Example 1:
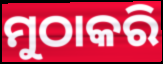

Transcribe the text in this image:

ମୁଠାକରି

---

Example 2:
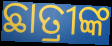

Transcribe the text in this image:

ଛାତ୍ରୀଙ୍କ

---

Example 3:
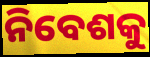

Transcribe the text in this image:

ନିବେଶକୁ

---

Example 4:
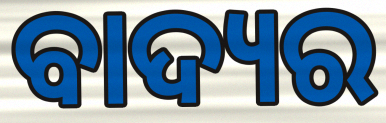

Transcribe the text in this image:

ବାଦ୍ୟର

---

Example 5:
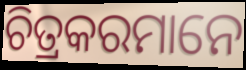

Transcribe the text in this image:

ଚିତ୍ରକରମାନେ